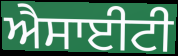
ਐਸਾਈਟੀ